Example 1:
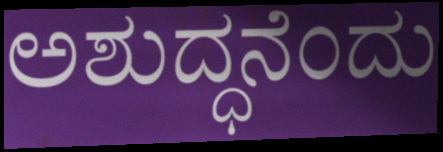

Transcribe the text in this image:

ಅಶುದ್ಧನೆಂದು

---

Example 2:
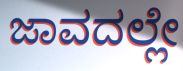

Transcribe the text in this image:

ಜಾವದಲ್ಲೇ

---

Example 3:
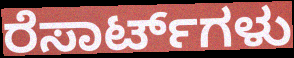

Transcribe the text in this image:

ರೆಸಾರ್ಟ್‌ಗಳು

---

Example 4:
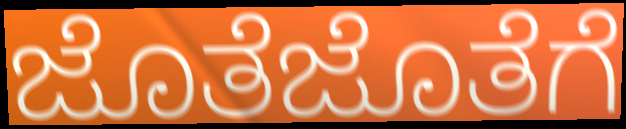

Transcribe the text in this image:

ಜೊತೆಜೊತೆಗೆ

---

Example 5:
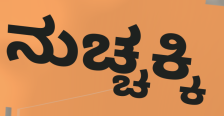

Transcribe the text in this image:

ನುಚ್ಚಕ್ಕಿ